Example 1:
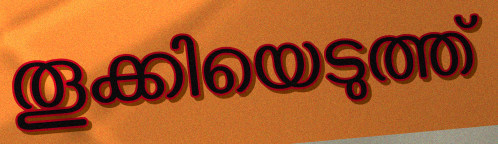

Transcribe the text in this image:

തൂക്കിയെടുത്ത്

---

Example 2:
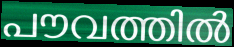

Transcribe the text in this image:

പൗവത്തിൽ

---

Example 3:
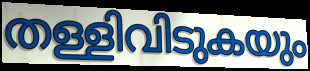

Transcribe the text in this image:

തള്ളിവിടുകയും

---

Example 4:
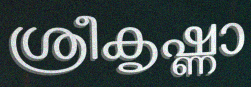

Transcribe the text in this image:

ശ്രീകൃഷ്ണാ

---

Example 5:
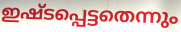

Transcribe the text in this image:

ഇഷ്ടപ്പെട്ടതെന്നും